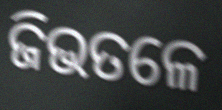
ଜିଭତଳେ